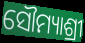
ସୌମ୍ୟାଶ୍ରୀ